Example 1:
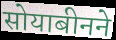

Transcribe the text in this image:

सोयाबीनने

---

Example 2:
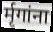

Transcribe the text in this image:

र्मृगांना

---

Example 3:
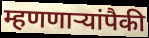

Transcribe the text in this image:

म्हणणाऱ्यांपैकी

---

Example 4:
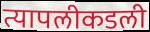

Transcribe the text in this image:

त्यापलीकडली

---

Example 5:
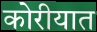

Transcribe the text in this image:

कोरीयात